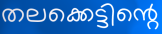
തലക്കെട്ടിന്റെ